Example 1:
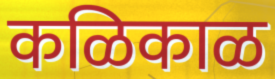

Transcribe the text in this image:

कळिकाळ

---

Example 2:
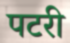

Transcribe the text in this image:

पटरी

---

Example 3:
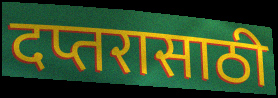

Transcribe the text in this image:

दप्तरासाठी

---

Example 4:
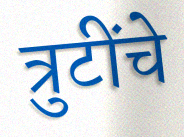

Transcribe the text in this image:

त्रुटींचे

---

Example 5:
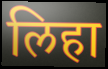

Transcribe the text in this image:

लिहा